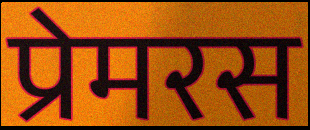
प्रेमरस